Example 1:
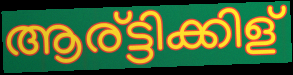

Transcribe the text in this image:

ആര്ട്ടിക്കിള്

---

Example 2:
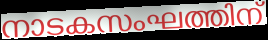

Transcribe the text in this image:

നാടകസംഘത്തിന്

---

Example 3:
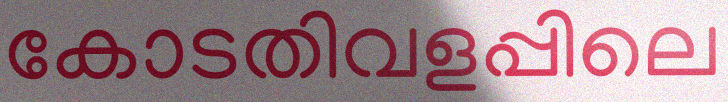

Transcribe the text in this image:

കോടതിവളപ്പിലെ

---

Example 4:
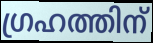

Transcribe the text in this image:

ഗ്രഹത്തിന്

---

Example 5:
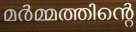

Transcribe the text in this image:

മർമ്മത്തിന്റെ